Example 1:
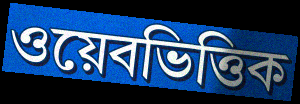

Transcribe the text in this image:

ওয়েবভিত্তিক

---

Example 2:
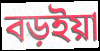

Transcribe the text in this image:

বড়ইয়া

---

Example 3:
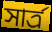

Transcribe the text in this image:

সার্ত্র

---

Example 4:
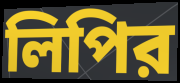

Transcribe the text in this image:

লিপির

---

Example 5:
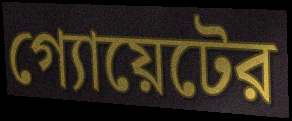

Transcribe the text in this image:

গ্যোয়েটের